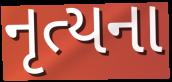
નૃત્યના